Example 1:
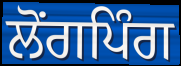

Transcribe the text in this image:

ਲੋਂਗਪਿੰਗ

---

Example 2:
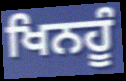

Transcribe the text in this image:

ਖਿਨਹੂੰ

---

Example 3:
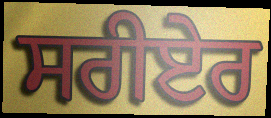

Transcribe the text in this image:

ਸਰੀਏਰ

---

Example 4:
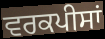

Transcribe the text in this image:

ਵਰਕਪੀਸਾਂ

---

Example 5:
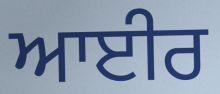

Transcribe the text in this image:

ਆਈਰ